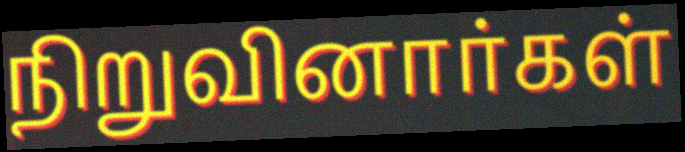
நிறுவினார்கள்